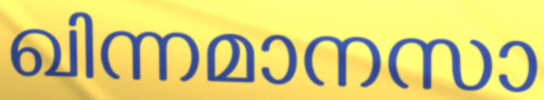
ഖിന്നമാനസാ